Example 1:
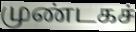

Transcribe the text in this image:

முண்டகச்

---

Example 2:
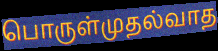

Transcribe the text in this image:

பொருள்முதல்வாத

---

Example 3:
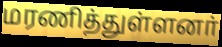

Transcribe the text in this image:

மரணித்துள்ளனர்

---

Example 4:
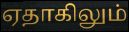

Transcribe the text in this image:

ஏதாகிலும்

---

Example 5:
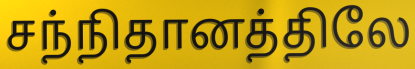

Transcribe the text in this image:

சந்நிதானத்திலே